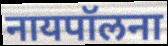
नायपॉलना